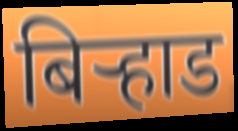
बिर्‍हाड